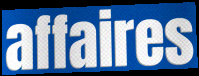
affaires